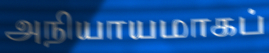
அநியாயமாகப்